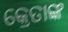
କ୍ରେତାଙ୍କ